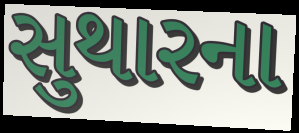
સુથારના